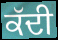
ਕੱਦੀ